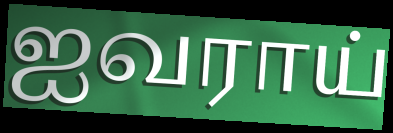
ஐவராய்